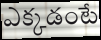
ఎక్కడంటే